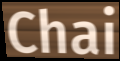
Chai